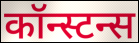
कॉन्स्टन्स